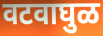
वटवाघुळ